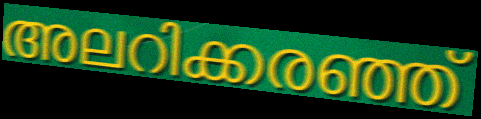
അലറിക്കരഞ്ഞ്